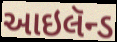
આઇલૅન્ડ